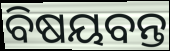
ବିଷୟବନ୍ତ